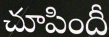
చూపిందీ